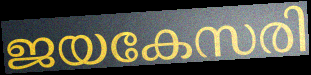
ജയകേസരി